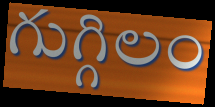
గుగ్గిలం